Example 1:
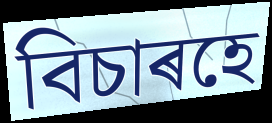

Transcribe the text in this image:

বিচাৰহে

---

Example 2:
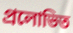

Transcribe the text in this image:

প্ৰলোভিত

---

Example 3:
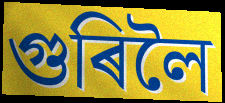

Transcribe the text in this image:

গুৰিলৈ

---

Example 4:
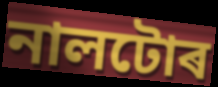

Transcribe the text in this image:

নালটোৰ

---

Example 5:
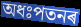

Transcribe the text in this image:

অধঃপতনৰ